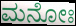
ಮನೋಃ